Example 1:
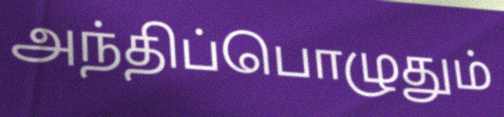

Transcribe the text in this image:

அந்திப்பொழுதும்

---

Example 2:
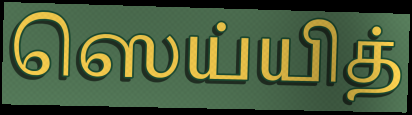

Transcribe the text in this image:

ஸெய்யித்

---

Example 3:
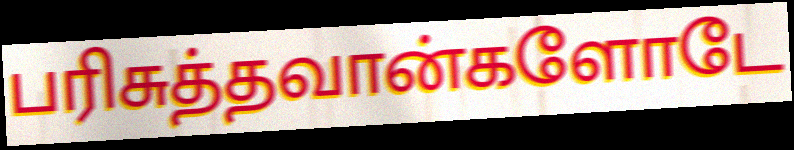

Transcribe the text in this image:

பரிசுத்தவான்களோடே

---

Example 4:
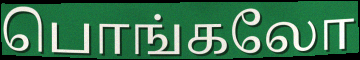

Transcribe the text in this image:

பொங்கலோ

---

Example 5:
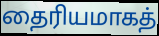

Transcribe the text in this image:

தைரியமாகத்